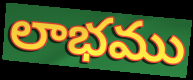
లాభము